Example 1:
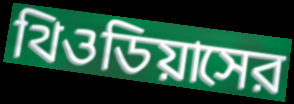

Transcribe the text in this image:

থিওডিয়াসের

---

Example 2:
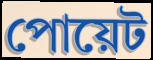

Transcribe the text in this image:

পোয়েট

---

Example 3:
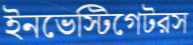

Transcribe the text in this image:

ইনভেস্টিগেটরস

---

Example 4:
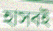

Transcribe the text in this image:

হাসবই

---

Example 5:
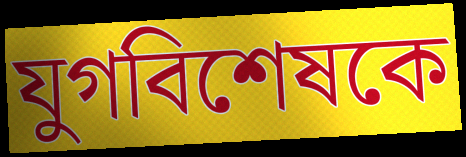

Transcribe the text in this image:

যুগবিশেষকে